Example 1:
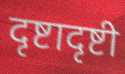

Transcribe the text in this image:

दृष्टादृष्टी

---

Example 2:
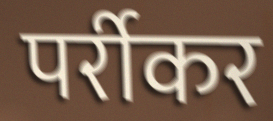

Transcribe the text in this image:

पर्रीकर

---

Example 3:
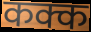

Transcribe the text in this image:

कक्क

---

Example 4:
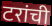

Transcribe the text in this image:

टरांची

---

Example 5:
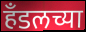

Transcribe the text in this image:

हँडलच्या